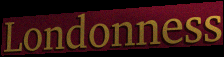
Londonness